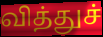
வித்துச்